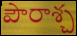
పౌరాశ్చ